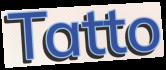
Tatto